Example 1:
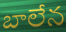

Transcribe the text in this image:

బాలేన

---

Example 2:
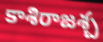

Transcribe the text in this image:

కాశిరాజశ్చ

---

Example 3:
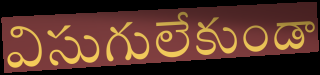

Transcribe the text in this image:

విసుగులేకుండా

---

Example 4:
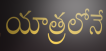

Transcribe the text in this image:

యాత్రలోనే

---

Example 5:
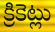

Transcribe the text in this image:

క్రికెట్లు